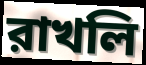
রাখলি